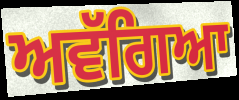
ਅਵੱਗਿਆ